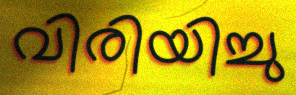
വിരിയിച്ചു